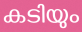
കടിയും